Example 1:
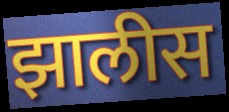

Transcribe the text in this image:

झालीस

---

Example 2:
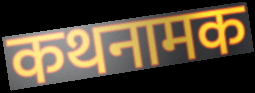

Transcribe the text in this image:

कथनामक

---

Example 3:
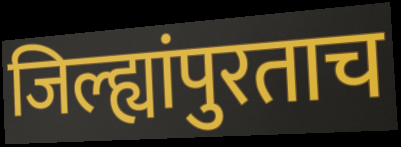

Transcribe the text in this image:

जिल्ह्यांपुरताच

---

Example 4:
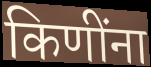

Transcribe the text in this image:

किणींना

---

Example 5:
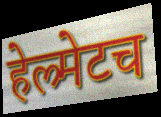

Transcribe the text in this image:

हेल्मेटच